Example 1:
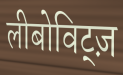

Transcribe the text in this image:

लीबोविट्ज़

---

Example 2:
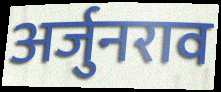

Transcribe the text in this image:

अर्जुनराव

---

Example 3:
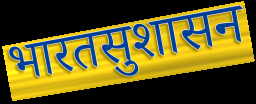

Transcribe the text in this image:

भारतसुशासन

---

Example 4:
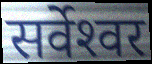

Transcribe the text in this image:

सर्वेश्‍वर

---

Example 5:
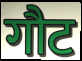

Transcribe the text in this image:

गौट